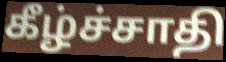
கீழ்ச்சாதி